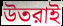
উতরাই